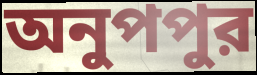
অনুপপুর